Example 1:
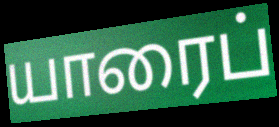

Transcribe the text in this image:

யாரைப்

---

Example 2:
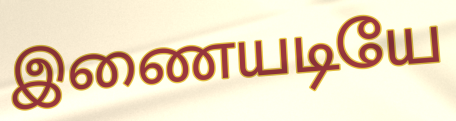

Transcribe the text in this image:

இணையடியே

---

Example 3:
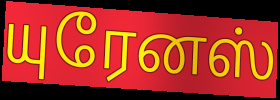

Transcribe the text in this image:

யுரேனஸ்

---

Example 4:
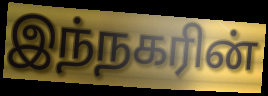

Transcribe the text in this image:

இந்நகரின்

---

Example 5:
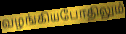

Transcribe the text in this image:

வழங்கியபோதிலும்